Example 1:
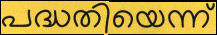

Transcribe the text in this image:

പദ്ധതിയെന്ന്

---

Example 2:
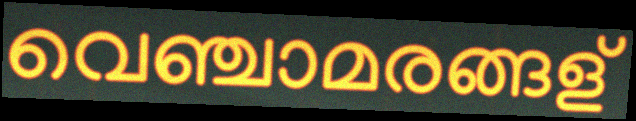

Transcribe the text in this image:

വെഞ്ചാമരങ്ങള്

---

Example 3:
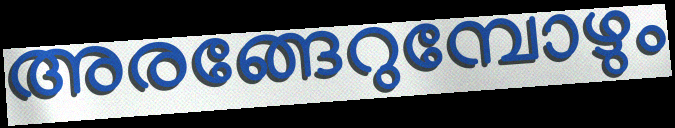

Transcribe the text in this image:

അരങ്ങേറുമ്പോഴും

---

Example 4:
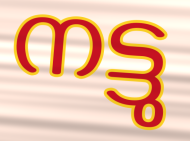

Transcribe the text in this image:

നട്ടു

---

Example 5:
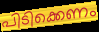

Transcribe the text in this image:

പിടിക്കെണം